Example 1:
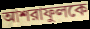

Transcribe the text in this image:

আশরাফুলকে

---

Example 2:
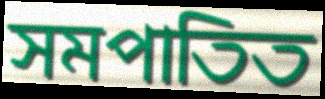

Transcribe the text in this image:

সমপাতিত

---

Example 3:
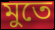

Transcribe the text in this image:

মুতে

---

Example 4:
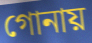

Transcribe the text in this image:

গোনায়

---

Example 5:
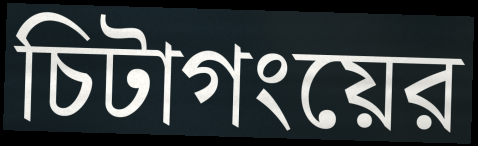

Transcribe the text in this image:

চিটাগংয়ের